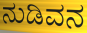
ನುಡಿವನ